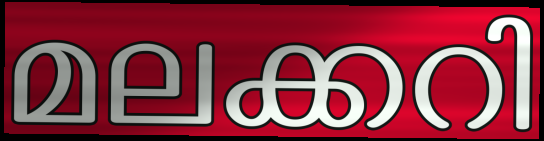
മലക്കറി